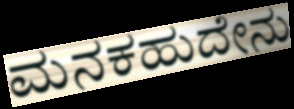
ಮನಕಹುದೇನು